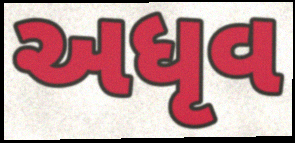
અધૃવ